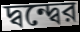
দ্বন্দ্বের